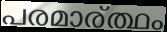
പരമാര്ത്ഥം